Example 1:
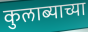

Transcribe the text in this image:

कुलाब्याच्या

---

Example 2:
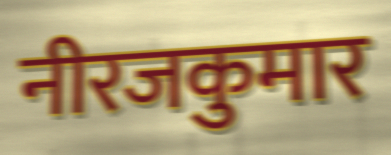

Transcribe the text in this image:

नीरजकुमार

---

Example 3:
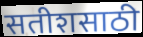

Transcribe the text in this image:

सतीशसाठी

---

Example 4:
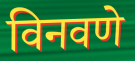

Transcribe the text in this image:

विनवणे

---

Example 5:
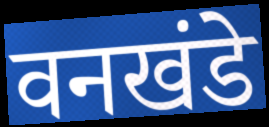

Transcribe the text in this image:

वनखंडे